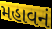
મહાવનં